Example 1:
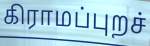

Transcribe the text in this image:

கிராமப்புறச்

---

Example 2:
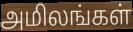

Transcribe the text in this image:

அமிலங்கள்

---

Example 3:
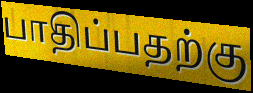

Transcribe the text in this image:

பாதிப்பதற்கு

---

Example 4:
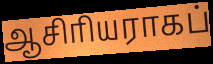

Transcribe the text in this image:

ஆசிரியராகப்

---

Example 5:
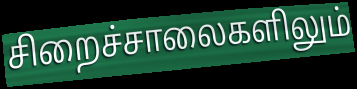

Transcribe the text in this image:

சிறைச்சாலைகளிலும்